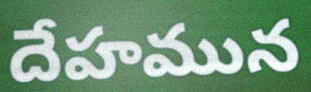
దేహమున